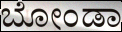
ಬೋಂಡಾ